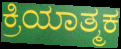
ಕ್ರಿಯಾತ್ಮಕ